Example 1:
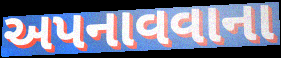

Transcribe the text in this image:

અપનાવવાના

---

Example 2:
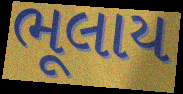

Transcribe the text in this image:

ભૂલાય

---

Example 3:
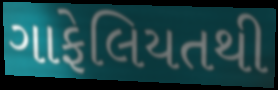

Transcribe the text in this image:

ગાફેલિયતથી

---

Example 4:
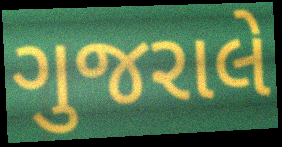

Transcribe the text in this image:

ગુજરાલે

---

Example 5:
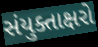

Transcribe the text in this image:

સંયુક્તાક્ષરો